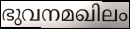
ഭുവനമഖിലം